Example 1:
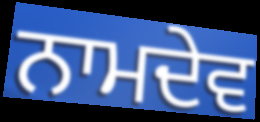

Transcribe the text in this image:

ਨਾਮਦੇਵ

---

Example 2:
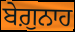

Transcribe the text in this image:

ਬੇਗ਼ੁਨਾਹ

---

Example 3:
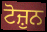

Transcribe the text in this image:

ਟੋਜ਼ੁਨ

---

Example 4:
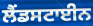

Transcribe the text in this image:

ਲੈਂਡਸਟਾਈਨ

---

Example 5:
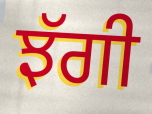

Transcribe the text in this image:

ਝੱਗੀ